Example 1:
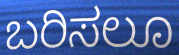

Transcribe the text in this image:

ಬರಿಸಲೂ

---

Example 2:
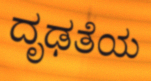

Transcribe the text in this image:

ದೃಢತೆಯ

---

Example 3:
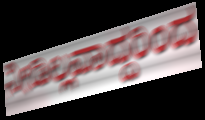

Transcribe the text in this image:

ನೀಡಿಲ್ಲವಾದ್ದರಿಂದ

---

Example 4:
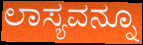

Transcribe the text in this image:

ಲಾಸ್ಯವನ್ನೂ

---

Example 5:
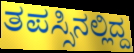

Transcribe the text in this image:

ತಪಸ್ಸಿನಲ್ಲಿದ್ದ